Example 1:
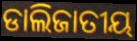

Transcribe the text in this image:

ଡାଲିଜାତୀୟ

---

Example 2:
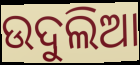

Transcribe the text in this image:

ଉଦୁଲିଆ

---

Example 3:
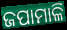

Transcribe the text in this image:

ଜପାମାଳି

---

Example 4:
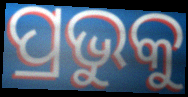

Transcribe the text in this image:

ପ୍ରଭୁକୁ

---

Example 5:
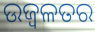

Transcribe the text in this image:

ଉଜ୍ବଳତର